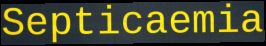
Septicaemia